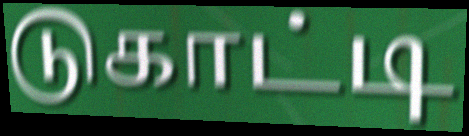
டுகாட்டி